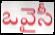
ఒవైసీ